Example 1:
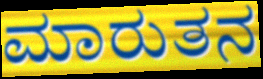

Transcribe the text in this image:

ಮಾರುತನ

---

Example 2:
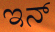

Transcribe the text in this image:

ಇನ್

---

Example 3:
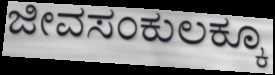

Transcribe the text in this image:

ಜೀವಸಂಕುಲಕ್ಕೂ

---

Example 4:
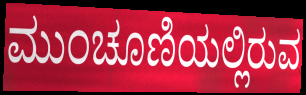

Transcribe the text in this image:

ಮುಂಚೂಣಿಯಲ್ಲಿರುವ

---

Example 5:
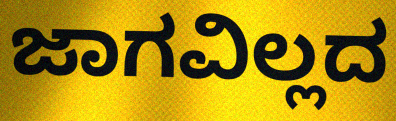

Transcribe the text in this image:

ಜಾಗವಿಲ್ಲದ